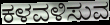
ಕಳವಳಿಸುವ